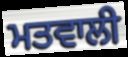
ਮਤਵਾਲੀ